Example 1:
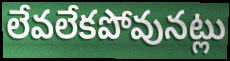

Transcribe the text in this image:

లేవలేకపోవునట్లు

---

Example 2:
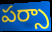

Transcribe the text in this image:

పర్సా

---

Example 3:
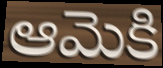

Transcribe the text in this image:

ఆమెకి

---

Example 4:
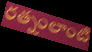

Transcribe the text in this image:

రత్నంలాంటి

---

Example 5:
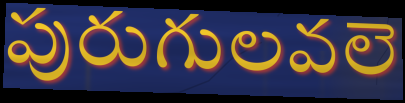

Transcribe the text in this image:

పురుగులవలె